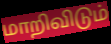
மாறிவிடும்